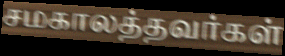
சமகாலத்தவர்கள்